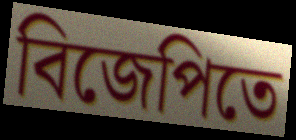
বিজেপিতে